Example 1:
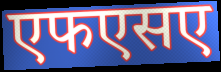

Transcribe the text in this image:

एफएसए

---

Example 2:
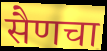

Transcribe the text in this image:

सैणचा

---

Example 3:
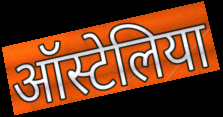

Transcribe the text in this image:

ऑस्टेलिया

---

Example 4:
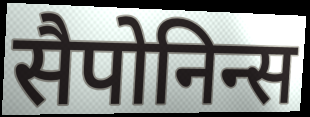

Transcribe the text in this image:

सैपोनिन्स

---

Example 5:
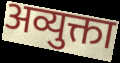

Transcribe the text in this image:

अव्युक्ता